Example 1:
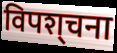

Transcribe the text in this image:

विपश्चना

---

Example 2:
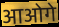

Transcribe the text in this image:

आओगे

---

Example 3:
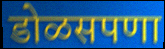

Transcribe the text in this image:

डोळसपणा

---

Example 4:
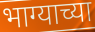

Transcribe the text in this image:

भाग्याच्या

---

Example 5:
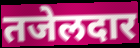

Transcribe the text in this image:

तजेलदार